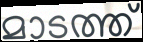
മാടത്ത്